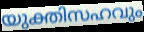
യുക്തിസഹവും